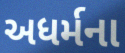
અધર્મના